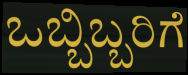
ಒಬ್ಬಿಬ್ಬರಿಗೆ